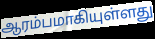
ஆரம்பமாகியுள்ளது